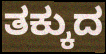
ತಕ್ಕುದ